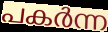
പകർന്ന